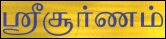
ஸ்ரீசூர்ணம்